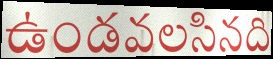
ఉండవలసినది